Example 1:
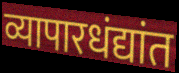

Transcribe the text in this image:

व्यापारधंद्यांत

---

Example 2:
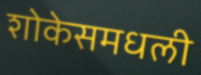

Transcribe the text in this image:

शोकेसमधली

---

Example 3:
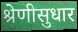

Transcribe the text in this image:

श्रेणीसुधार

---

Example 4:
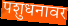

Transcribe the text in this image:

पशुधनावर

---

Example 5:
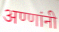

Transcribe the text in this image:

अण्णांनी